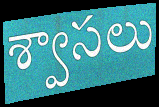
శ్వాసలు